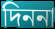
দিননা